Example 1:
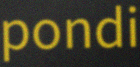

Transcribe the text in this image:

pondi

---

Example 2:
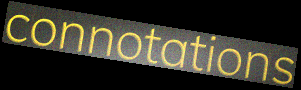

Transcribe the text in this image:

connotations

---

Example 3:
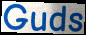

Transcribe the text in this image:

Guds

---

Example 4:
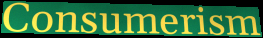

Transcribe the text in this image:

Consumerism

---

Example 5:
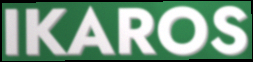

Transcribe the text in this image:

IKAROS